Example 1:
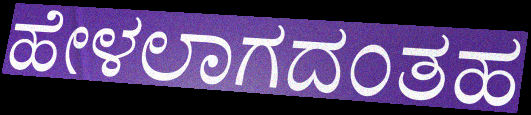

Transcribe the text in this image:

ಹೇಳಲಾಗದಂತಹ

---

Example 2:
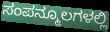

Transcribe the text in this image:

ಸಂಪನ್ಮೂಲಗಳಲ್ಲಿ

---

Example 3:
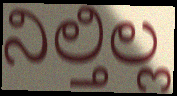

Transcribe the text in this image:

ನಿಲ್ತಿಲ್ಲ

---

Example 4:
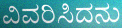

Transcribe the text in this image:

ವಿವರಿಸಿದನು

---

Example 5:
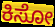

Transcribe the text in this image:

ಕಿಸೋ